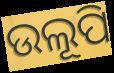
ଉଲୂପି